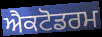
ਐਕਟੋਡਰਮ